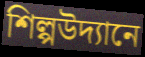
শিল্পউদ্যানে